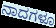
ನಾದಗಳೂ